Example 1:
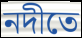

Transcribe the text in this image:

নদীতে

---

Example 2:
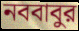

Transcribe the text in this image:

নববাবুর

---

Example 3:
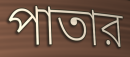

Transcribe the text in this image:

পাতার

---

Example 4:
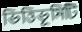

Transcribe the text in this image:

ভিত্তিভূমিটি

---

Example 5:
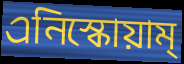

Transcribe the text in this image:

এনিস্কোয়াম্